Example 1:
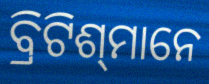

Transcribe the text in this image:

ବ୍ରିଟିଶ୍‍ମାନେ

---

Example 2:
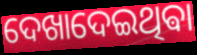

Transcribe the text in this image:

ଦେଖାଦେଇଥିଵା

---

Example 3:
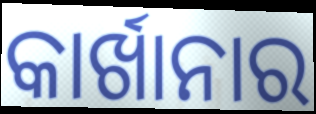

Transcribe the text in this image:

କାର୍ଖାନାର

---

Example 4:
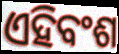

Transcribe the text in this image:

ଏହିବଂଶ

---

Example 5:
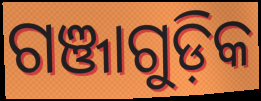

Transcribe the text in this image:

ଗଞ୍ଜାଗୁଡ଼ିକ